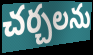
చర్చలను